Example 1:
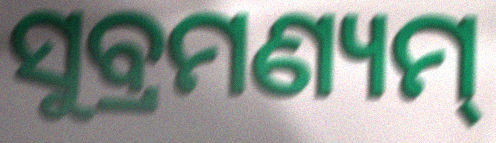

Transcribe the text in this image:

ସୁବ୍ରମଣ୍ୟମ୍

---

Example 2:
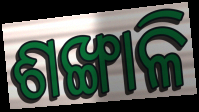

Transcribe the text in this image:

ଶଙ୍ଖାଳି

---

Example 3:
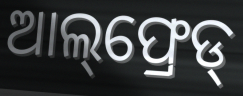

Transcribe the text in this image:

ଆଲ୍‌ଫ୍ରେଡ୍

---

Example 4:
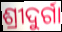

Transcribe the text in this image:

ଶ୍ରୀଦୁର୍ଗା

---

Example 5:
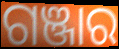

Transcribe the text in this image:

ଗଞ୍ଜାର